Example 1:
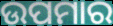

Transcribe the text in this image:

ଉପମାର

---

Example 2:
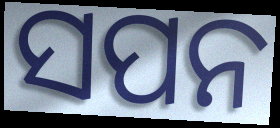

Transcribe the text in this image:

ସପନ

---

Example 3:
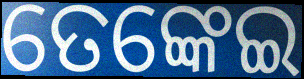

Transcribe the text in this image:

ତେଙ୍କେଇ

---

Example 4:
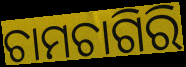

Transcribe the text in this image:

ଚାମଚାଗିରି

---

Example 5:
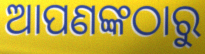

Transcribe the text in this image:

ଆପଣଙ୍କଠାରୁ